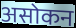
असोकन